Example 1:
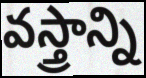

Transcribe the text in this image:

వస్త్రాన్ని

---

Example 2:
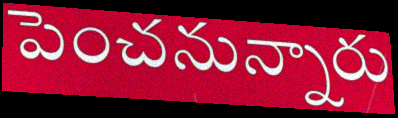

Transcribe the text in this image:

పెంచనున్నారు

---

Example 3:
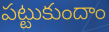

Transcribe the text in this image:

పట్టుకుందాం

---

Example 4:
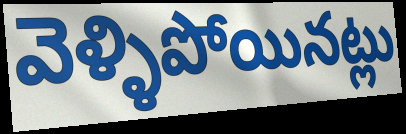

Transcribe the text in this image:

వెళ్ళిపోయినట్లు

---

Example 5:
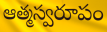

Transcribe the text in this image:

ఆత్మస్వరూపం